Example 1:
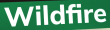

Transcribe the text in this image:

Wildfire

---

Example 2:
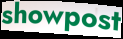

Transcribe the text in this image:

showpost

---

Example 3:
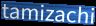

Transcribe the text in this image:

tamizachi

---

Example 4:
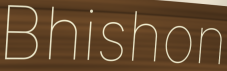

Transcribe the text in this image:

Bhishon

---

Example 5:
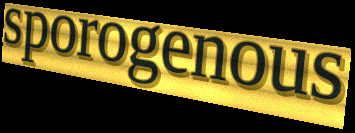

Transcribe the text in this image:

sporogenous